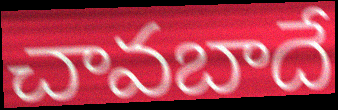
చావబాదే